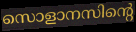
സൊളാനസിന്റെ